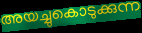
അയച്ചുകൊടുക്കുന്ന